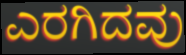
ಎರಗಿದವು